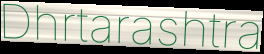
Dhrtarashtra